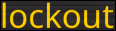
lockout